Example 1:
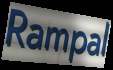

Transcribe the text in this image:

Rampal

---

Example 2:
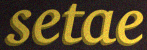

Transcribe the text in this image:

setae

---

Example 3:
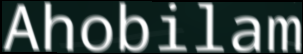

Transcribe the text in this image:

Ahobilam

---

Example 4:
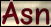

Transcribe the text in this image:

Asn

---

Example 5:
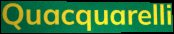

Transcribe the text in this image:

Quacquarelli